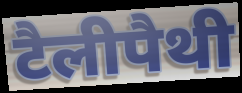
टैलीपैथी